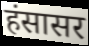
हंसासर